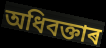
অধিবক্তাৰ